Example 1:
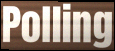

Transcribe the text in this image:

Polling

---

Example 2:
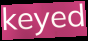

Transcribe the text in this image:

keyed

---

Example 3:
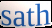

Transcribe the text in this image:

sath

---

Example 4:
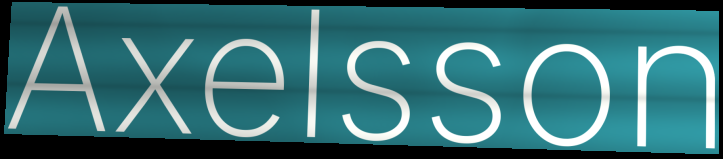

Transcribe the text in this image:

Axelsson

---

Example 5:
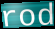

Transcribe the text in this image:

rod